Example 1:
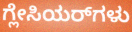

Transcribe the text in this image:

ಗ್ಲೇಸಿಯರ್‌ಗಳು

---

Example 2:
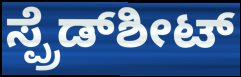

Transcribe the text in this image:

ಸ್ಪ್ರೆಡ್‌ಶೀಟ್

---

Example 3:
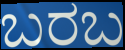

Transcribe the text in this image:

ಬರಬ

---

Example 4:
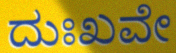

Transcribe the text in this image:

ದುಃಖವೇ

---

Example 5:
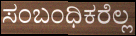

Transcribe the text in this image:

ಸಂಬಂಧಿಕರೆಲ್ಲ